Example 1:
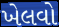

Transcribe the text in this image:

ખેલવો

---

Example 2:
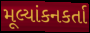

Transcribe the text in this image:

મૂલ્યાંકનકર્તા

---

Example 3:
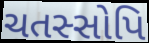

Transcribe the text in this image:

ચતસ્સોપિ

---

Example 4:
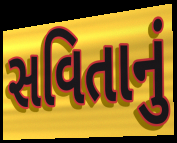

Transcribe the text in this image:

સવિતાનું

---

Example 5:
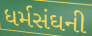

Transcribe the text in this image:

ધર્મસંઘની